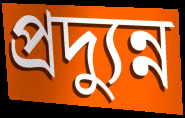
প্রদ্যুন্ন